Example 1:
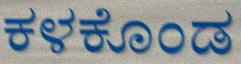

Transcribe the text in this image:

ಕಳಕೊಂಡ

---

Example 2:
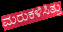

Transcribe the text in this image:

ಮರುಕಳಿಸಿತ್ತು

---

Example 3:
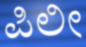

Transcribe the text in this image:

ಪಿಲೀ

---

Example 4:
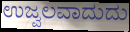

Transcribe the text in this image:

ಉಜ್ವಲವಾದುದು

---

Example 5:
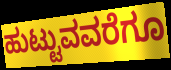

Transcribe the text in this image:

ಹುಟ್ಟುವವರೆಗೂ